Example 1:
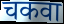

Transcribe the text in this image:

चकवा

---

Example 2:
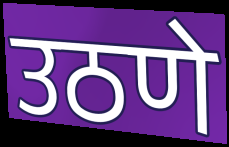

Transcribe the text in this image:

उठणे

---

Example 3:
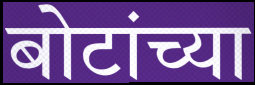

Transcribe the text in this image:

बोटांच्या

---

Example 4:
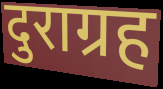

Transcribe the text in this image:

दुराग्रह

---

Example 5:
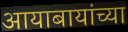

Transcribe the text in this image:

आयाबायांच्या